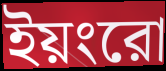
ইয়ংরো